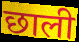
छाली